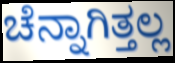
ಚೆನ್ನಾಗಿತ್ತಲ್ಲ